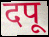
दपू